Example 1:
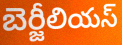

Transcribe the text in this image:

బెర్జీలియస్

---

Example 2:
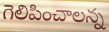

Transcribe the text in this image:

గెలిపించాలన్న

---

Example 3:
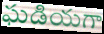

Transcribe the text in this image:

ఘడియగా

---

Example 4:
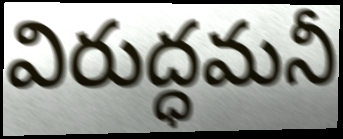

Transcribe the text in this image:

విరుద్ధమనీ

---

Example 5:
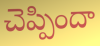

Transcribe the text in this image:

చెప్పిందా